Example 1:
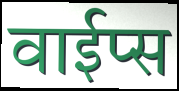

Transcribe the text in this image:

वाईप्स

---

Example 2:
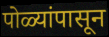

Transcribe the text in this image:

पोळ्यांपासून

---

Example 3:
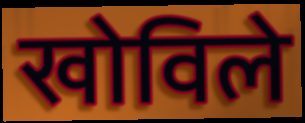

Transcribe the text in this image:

खोविले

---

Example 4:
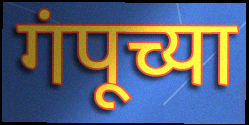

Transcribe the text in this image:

गंपूच्या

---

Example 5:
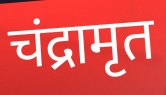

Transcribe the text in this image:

चंद्रामृत